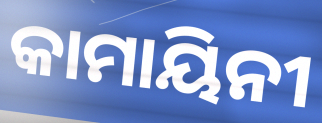
କାମାୟିନୀ